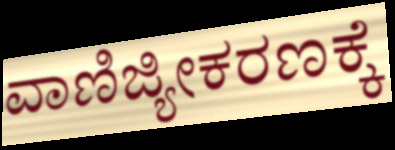
ವಾಣಿಜ್ಯೀಕರಣಕ್ಕೆ